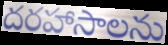
దరహాసాలను